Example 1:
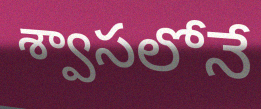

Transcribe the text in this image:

శ్వాసలోనే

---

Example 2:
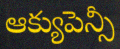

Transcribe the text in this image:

ఆక్యుపెన్సీ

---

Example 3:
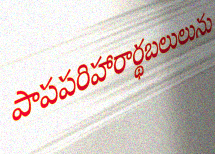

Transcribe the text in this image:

పాపపరిహారార్థబలులును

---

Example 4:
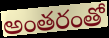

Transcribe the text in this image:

అంతరంతో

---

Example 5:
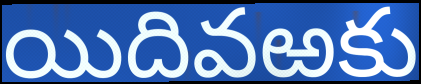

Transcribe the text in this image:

యిదివఱకు